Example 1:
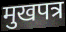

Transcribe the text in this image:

मुखपत्र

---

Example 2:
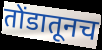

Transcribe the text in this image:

तोंडातूनच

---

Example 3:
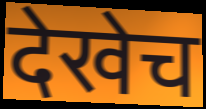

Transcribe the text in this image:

देखेच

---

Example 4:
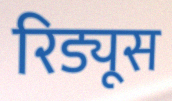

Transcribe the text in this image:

रिड्यूस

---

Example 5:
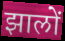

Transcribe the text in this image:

झालों